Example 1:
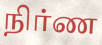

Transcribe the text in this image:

நிர்ண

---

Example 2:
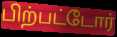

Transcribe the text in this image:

பிற்பட்டோர்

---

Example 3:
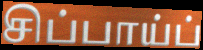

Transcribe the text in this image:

சிப்பாய்ப்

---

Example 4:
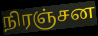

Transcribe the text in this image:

நிரஞ்சன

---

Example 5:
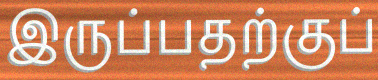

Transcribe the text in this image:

இருப்பதற்குப்